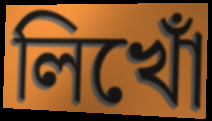
লিখোঁ